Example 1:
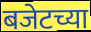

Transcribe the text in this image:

बजेटच्या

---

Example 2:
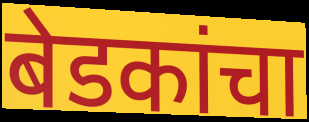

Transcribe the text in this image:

बेडकांचा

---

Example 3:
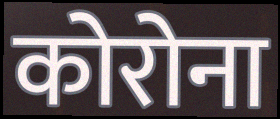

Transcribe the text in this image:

कोरोना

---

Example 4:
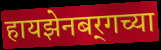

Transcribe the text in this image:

हायझेनबर्गच्या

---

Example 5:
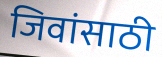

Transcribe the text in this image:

जिवांसाठी